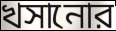
খসানোর